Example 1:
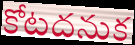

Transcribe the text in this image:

కోటదనుక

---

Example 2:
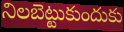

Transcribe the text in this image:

నిలబెట్టుకుందుకు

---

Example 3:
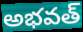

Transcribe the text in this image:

అభవత్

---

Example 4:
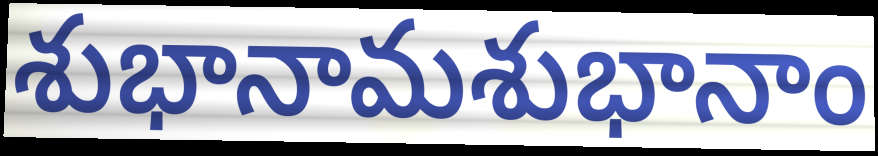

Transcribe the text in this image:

శుభానామశుభానాం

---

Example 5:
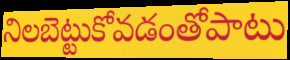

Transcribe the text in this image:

నిలబెట్టుకోవడంతోపాటు